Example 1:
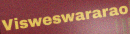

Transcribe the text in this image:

Visweswararao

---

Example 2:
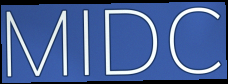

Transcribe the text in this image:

MIDC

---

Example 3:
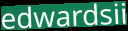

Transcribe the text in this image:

edwardsii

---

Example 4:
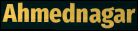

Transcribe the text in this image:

Ahmednagar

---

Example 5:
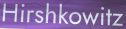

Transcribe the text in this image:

Hirshkowitz